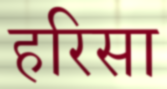
हरिसा